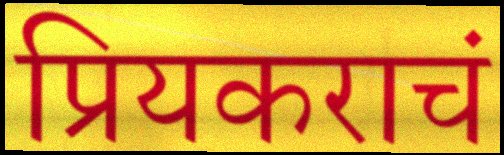
प्रियकराचं